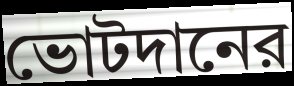
ভোটদানের